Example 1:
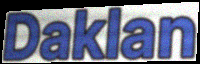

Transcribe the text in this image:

Daklan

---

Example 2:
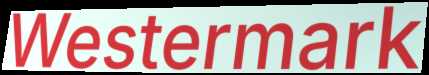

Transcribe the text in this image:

Westermark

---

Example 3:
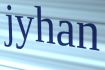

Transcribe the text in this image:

jyhan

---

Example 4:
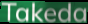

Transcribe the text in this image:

Takeda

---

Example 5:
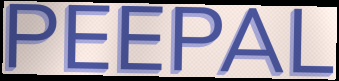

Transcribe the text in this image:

PEEPAL